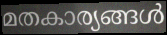
മതകാര്യങ്ങൾ